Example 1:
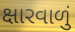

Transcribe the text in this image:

ક્ષારવાળું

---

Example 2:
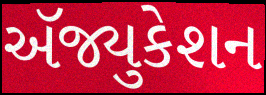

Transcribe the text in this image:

ઍજ્યુકેશન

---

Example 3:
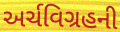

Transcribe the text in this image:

અર્ચવિગ્રહની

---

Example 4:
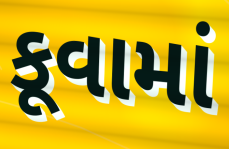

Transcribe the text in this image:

કૂવામાં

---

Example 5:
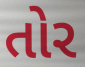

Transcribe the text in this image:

તોર